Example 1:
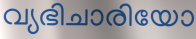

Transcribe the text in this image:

വ്യഭിചാരിയോ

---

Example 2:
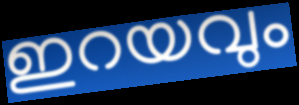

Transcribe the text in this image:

ഇറയവും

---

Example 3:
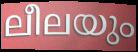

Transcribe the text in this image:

ലീലയും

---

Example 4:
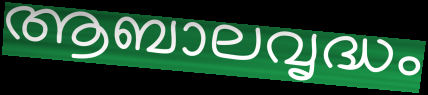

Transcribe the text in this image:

ആബാലവൃദ്ധം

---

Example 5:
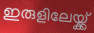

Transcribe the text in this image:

ഇരുളിലേയ്ക്ക്